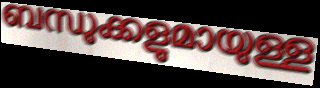
ബന്ധുക്കളുമായുള്ള